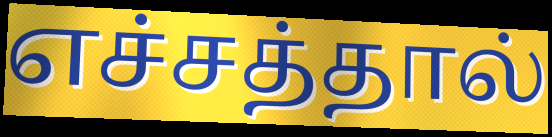
எச்சத்தால்